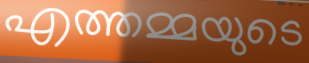
എത്തമ്മയുടെ